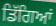
ਡਿੱਗਿਆਂ